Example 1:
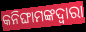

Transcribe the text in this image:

କନିଙ୍ଘାମଙ୍କଦ୍ଵାରା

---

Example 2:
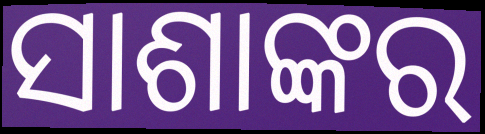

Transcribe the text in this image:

ସାଶାଙ୍କର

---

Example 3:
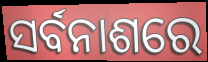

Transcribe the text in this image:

ସର୍ବନାଶରେ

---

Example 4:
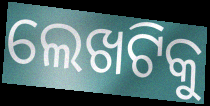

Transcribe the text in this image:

ଲେଖଟିକୁ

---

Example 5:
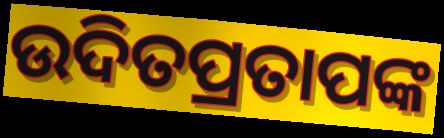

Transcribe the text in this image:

ଉଦିତପ୍ରତାପଙ୍କ